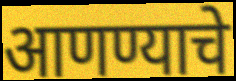
आणण्याचे